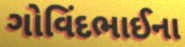
ગોવિંદભાઈના